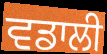
ਵਡਾਲੀ